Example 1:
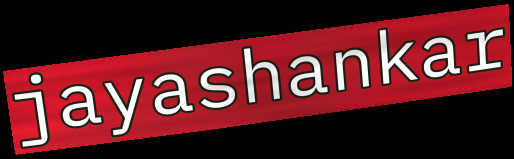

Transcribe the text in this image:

jayashankar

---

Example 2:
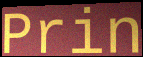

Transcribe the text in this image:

Prin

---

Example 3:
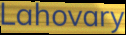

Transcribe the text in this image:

Lahovary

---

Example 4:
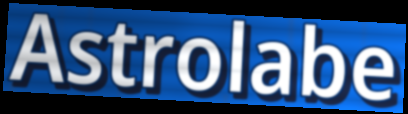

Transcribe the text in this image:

Astrolabe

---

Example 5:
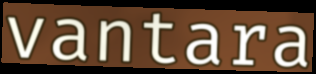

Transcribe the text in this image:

vantara